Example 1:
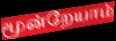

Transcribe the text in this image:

மூன்றேயாம்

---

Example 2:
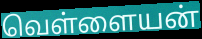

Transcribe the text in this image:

வெள்ளையன்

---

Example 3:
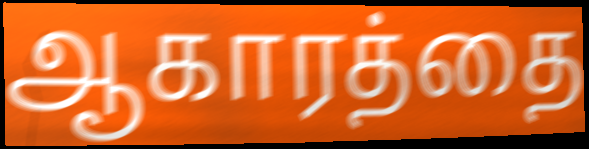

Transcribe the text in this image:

ஆகாரத்தை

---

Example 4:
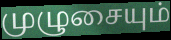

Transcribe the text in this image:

முழுசையும்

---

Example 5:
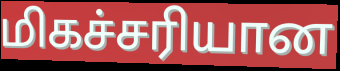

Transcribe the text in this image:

மிகச்சரியான